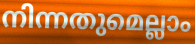
നിന്നതുമെല്ലാം